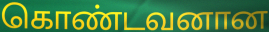
கொண்டவனான